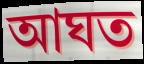
আঘত